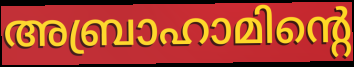
അബ്രാഹാമിന്റെ